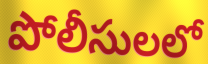
పోలీసులలో